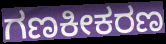
ಗಣಕೀಕರಣ